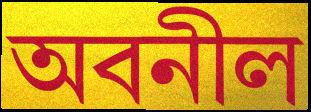
অবনীল